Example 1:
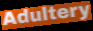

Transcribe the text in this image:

Adultery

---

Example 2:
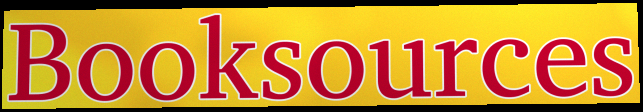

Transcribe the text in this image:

Booksources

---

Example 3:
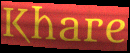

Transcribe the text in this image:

Khare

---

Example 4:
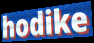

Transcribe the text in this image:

hodike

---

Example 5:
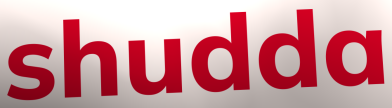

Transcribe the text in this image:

shudda